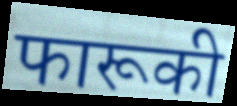
फारूकी